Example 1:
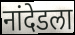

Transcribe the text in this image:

नांदेडला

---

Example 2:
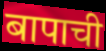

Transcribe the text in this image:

बापाची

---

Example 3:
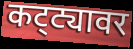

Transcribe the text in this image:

कट्ट्यावर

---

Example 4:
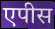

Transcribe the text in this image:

एपीस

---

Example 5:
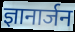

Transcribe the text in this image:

ज्ञानार्जन